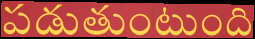
పడుతుంటుంది